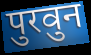
पुरवुन